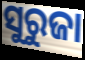
ସୁରୁଜା